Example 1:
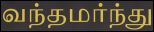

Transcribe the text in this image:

வந்தமர்ந்து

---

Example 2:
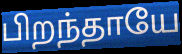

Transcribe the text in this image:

பிறந்தாயே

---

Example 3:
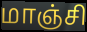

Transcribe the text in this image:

மாஞ்சி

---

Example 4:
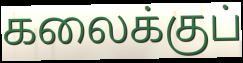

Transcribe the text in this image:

கலைக்குப்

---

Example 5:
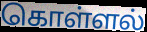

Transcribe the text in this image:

கொள்ளல்